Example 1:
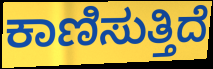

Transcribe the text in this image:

ಕಾಣಿಸುತ್ತಿದೆ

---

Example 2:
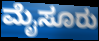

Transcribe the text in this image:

ಮೈಸೂರು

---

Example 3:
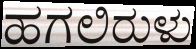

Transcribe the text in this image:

ಹಗಲಿರುಳು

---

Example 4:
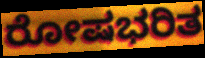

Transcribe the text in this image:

ರೋಷಭರಿತ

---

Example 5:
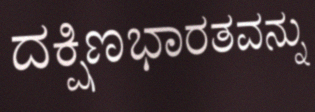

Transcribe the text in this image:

ದಕ್ಷಿಣಭಾರತವನ್ನು